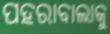
ପହରାବାଲାକୁ